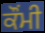
ਕੌਂਮੀ